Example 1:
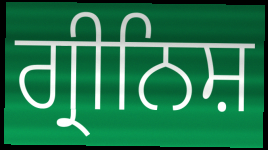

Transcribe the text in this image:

ਗ੍ਰੀਨਿਸ਼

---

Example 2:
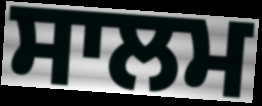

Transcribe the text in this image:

ਸਾਲਮ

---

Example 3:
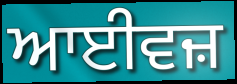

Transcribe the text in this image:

ਆਈਵਜ਼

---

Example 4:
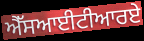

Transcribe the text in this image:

ਐੱਸਆਈਟੀਆਰਏ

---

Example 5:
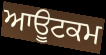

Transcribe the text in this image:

ਆਊਟਕਮ